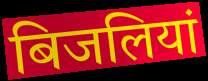
बिजलियां